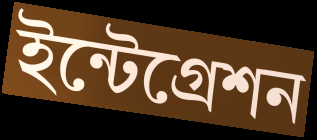
ইন্টেগ্রেশন